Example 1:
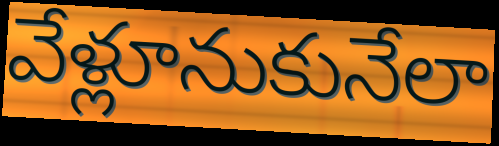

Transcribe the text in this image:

వేళ్లూనుకునేలా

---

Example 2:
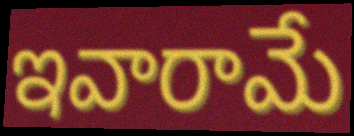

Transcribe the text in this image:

ఇవారామే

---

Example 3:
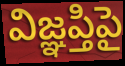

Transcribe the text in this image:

విజ్ఞప్తిపై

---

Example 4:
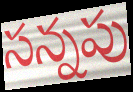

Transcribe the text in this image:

సన్నపు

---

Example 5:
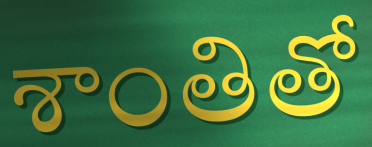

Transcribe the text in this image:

శాంతితో